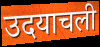
उदयाचली